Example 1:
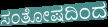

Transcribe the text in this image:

ಸಂತೋಷದಿಂದ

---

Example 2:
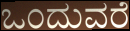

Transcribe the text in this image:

ಒಂದುವರೆ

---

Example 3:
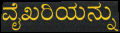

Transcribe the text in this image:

ವೈಖರಿಯನ್ನು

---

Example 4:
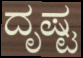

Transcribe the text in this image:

ದೃಷ್ಟ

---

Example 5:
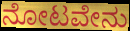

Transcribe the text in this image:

ನೋಟವೇನು